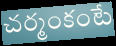
చర్మంకంటే